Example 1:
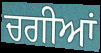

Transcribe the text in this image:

ਚਗੀਆਂ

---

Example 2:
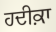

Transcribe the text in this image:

ਹਦੀਕ਼ਾ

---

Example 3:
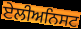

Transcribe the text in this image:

ਏਲੀਅਨਿਸਟ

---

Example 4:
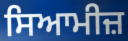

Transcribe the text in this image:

ਸਿਆਮੀਜ਼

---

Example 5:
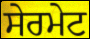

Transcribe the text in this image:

ਸੇਰਮੇਟ